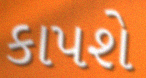
કાપશે